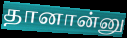
தானான்னு